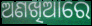
ଅଣଖିଆରେ